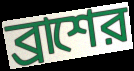
ব্রাশের